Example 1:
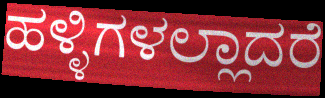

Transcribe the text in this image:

ಹಳ್ಳಿಗಳಲ್ಲಾದರೆ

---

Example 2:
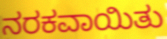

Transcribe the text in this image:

ನರಕವಾಯಿತು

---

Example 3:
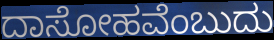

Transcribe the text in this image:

ದಾಸೋಹವೆಂಬುದು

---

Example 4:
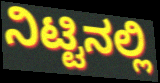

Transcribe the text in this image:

ನಿಟ್ಟಿನಲ್ಲಿ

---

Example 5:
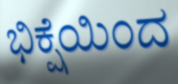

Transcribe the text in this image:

ಭಿಕ್ಷೆಯಿಂದ